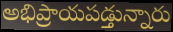
అభిప్రాయపడ్తున్నారు